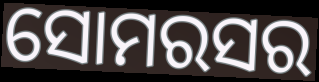
ସୋମରସର